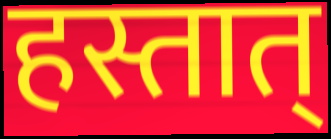
हस्तात्